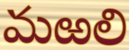
మఱలి